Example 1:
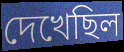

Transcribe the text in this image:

দেখেছিল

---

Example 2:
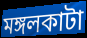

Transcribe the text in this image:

মঙ্গলকাটা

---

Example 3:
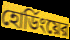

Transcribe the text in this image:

হোর্ডিংয়ের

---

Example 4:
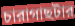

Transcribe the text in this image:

চারাগাছটার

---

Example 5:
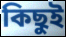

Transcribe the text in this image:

কিছুই